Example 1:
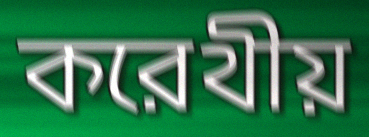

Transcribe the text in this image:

করেথীয়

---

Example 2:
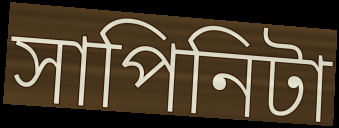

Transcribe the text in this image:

সাপিনিটা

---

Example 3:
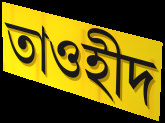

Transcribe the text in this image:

তাওহীদ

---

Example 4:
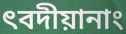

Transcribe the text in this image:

ৎবদীয়ানাং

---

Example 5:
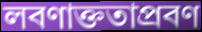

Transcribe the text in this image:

লবণাক্ততাপ্রবণ